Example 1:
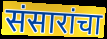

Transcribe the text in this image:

संसारांचा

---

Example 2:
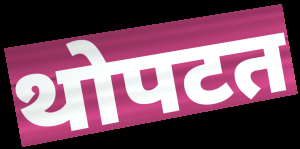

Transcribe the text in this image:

थोपटत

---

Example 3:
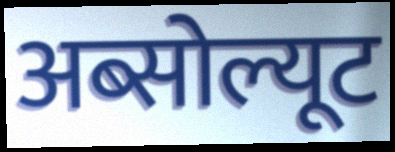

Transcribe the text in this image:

अब्सोल्यूट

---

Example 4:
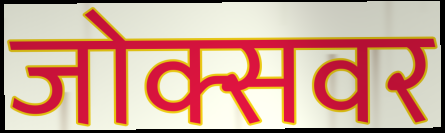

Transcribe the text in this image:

जोक्सवर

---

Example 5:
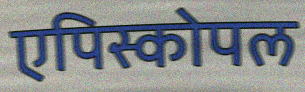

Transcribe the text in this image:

एपिस्कोपल